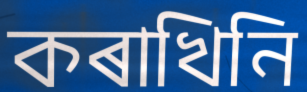
কৰাখিনি